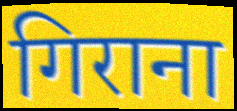
गिराना